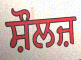
ਸ਼ੌਲਜ਼